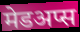
मेडअप्स